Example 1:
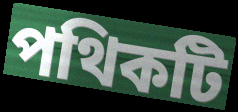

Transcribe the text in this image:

পথিকটি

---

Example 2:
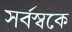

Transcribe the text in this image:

সর্বস্বকে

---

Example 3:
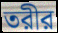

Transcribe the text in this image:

তরীর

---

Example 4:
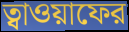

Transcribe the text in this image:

ত্বাওয়াফের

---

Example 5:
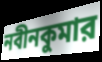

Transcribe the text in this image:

নবীনকুমার